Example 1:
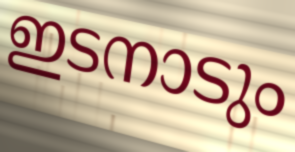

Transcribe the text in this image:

ഇടനാടും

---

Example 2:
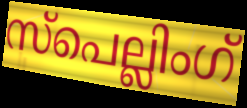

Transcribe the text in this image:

സ്പെല്ലിംഗ്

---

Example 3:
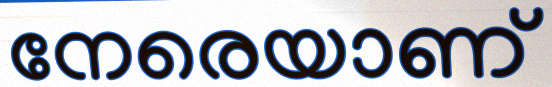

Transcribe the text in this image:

നേരെയാണ്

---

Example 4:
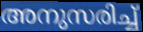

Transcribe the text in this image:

അനുസരിച്ച്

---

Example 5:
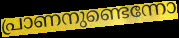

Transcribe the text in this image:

പ്രാണനുണ്ടെന്നോ